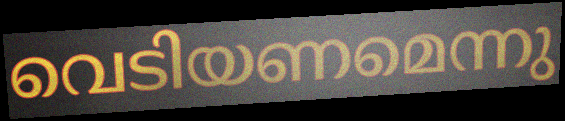
വെടിയണമെന്നു